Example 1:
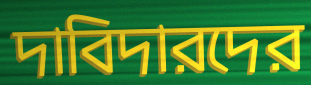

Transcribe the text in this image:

দাবিদারদের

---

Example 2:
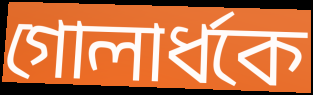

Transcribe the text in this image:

গোলার্ধকে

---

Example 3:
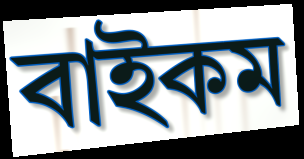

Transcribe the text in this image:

বাইকম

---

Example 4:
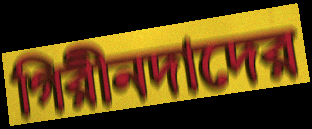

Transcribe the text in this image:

গিরীনদাদের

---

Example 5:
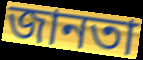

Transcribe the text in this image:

জানতা